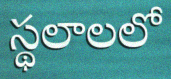
స్థలాలలో